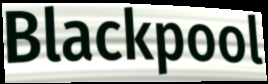
Blackpool